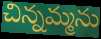
చిన్నమ్మను